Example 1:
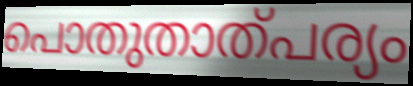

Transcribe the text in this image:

പൊതുതാത്പര്യം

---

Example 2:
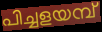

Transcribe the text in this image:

പിച്ചളയമ്പ്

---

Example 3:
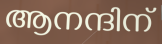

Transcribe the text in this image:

ആനന്ദിന്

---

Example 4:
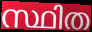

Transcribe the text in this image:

സ്ഥിത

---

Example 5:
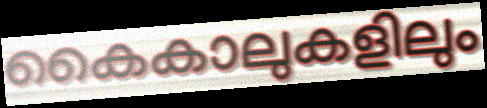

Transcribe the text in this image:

കൈകാലുകളിലും